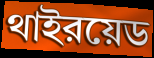
থাইরয়েড